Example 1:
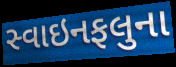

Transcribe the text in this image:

સ્વાઇનફલુના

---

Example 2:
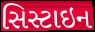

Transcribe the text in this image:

સિસ્ટાઇન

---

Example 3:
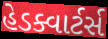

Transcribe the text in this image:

હેડક્વાર્ટર્સ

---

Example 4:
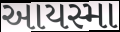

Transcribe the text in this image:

આયસ્મા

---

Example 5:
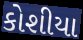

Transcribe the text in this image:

કોશીયા